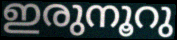
ഇരുനൂറു